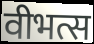
वीभत्स